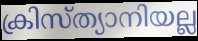
ക്രിസ്ത്യാനിയല്ല